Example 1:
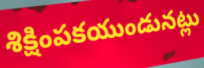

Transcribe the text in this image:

శిక్షింపకయుండునట్లు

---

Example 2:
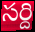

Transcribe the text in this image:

సర్ది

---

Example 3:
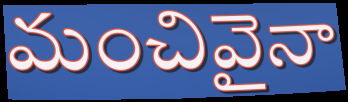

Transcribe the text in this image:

మంచివైనా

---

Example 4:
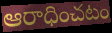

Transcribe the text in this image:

ఆరాధించటం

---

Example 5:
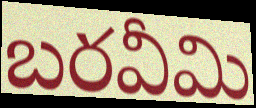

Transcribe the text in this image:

బరవీమి